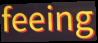
feeing